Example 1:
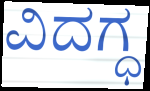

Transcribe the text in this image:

ವಿದಗ್ಧ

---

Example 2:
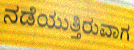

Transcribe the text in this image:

ನಡೆಯುತ್ತಿರುವಾಗ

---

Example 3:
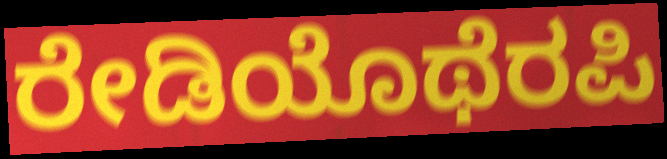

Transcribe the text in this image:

ರೇಡಿಯೊಥೆರಪಿ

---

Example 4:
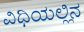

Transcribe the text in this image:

ವಿಧಿಯಲ್ಲಿನ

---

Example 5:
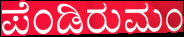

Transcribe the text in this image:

ಪೆಂಡಿರುಮಂ